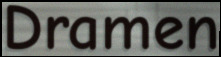
Dramen